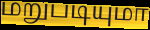
மறுபடியுமா